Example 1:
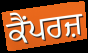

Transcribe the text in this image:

ਕੈਂਪਰਜ਼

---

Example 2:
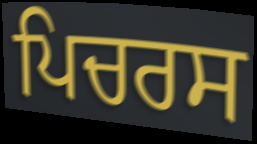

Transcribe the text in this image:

ਪਿਚਰਸ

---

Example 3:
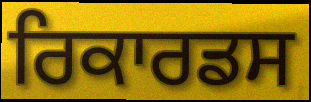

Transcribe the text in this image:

ਰਿਕਾਰਡਸ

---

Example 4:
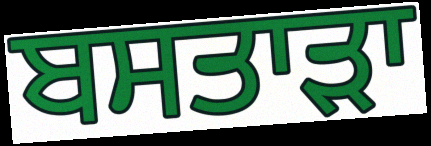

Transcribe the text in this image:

ਬਸਤਾੜਾ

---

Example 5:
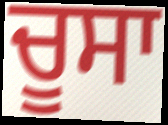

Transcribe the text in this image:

ਚੂਸਾ